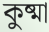
কুষ্মা